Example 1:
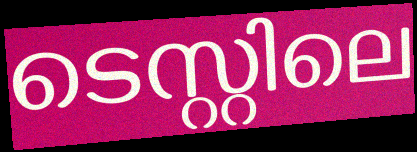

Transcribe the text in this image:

ടെസ്റ്റിലെ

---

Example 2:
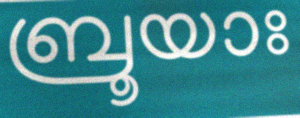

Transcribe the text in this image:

ബ്രൂയാഃ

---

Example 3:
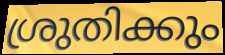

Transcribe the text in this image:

ശ്രുതിക്കും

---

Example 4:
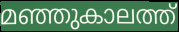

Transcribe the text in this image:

മഞ്ഞുകാലത്ത്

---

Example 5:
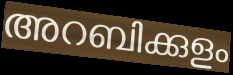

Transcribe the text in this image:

അറബിക്കുളം